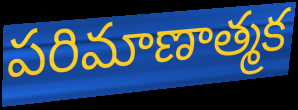
పరిమాణాత్మక